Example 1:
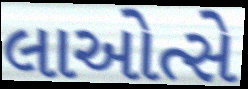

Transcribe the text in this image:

લાઓત્સે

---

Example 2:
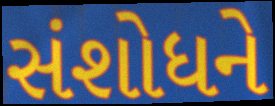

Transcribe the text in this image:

સંશોધને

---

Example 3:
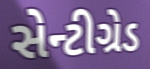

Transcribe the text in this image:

સેન્ટીગ્રેડ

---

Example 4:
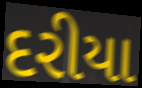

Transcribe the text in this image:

દરીયા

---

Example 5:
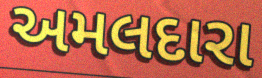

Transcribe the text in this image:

અમલદારા